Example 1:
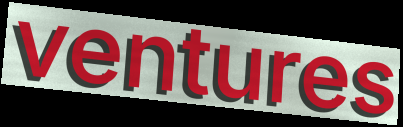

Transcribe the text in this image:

ventures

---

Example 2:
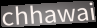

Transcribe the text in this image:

chhawai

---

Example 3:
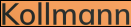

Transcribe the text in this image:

Kollmann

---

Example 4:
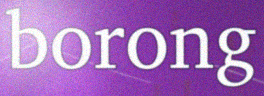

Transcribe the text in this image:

borong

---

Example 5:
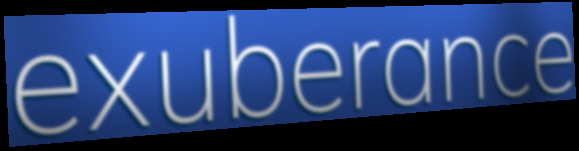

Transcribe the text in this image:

exuberance